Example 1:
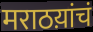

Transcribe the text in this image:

मराठय़ांचं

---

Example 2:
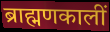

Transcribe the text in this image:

ब्राह्मणकालीं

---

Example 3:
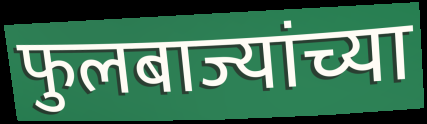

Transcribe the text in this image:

फुलबाज्यांच्या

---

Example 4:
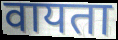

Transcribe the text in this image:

वायता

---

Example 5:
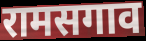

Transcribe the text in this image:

रामसगाव